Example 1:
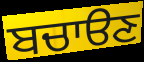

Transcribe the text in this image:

ਬਚਾੳਣ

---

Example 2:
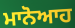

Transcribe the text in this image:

ਮਾਨੋਆਹ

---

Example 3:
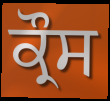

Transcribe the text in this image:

ਕ੍ਰੌਸ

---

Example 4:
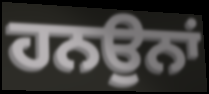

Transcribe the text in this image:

ਹਨਉਨਾਂ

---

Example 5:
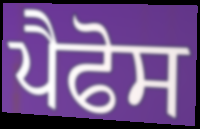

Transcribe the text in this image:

ਪੈਫੋਸ